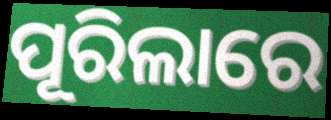
ପୂରିଲାରେ